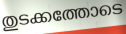
തുടക്കത്തോടെ